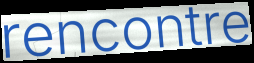
rencontre